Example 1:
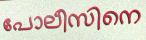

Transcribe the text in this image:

പോലീസിനെ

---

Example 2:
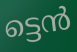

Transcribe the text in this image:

ട്ടെൻ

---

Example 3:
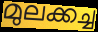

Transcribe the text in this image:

മുലക്കച്ച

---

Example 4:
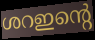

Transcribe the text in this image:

ശറഇന്റെ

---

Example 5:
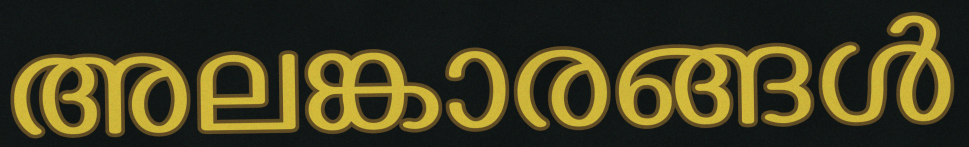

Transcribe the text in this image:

അലങ്കാരങ്ങൾ